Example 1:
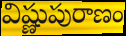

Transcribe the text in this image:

విష్ణుపురాణం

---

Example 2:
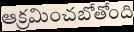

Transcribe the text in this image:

ఆక్రమించబోతోంది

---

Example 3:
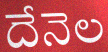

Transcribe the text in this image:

దేనెల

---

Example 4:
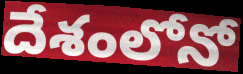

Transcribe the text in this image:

దేశంలోనో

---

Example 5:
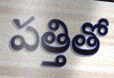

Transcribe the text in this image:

పత్తితో